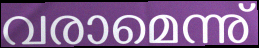
വരാമെന്നു്